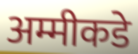
अम्मीकडे